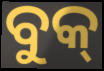
ବୁକ୍